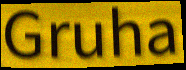
Gruha